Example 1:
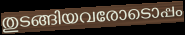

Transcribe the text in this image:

തുടങ്ങിയവരോടൊപ്പം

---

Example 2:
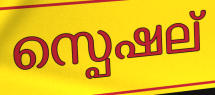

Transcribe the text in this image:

സ്പെഷല്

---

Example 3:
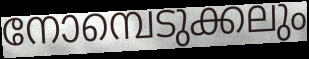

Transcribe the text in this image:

നോമ്പെടുക്കലും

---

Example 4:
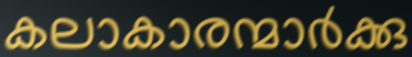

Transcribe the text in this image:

കലാകാരന്മാർക്കു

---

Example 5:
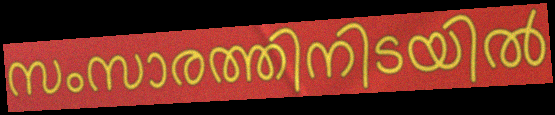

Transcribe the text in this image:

സംസാരത്തിനിടയിൽ